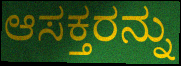
ಆಸಕ್ತರನ್ನು